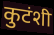
कुटंशी